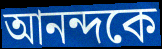
আনন্দকে